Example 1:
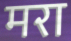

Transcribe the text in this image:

मरा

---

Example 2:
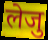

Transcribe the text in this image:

लेजु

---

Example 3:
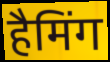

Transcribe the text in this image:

हैमिंग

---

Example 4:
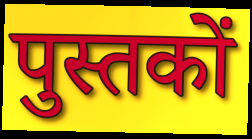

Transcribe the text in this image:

पुस्तकों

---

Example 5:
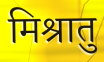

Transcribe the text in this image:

मिश्रातु